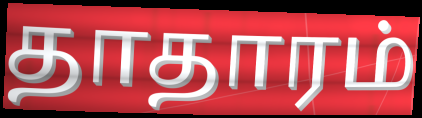
தாதாரம்